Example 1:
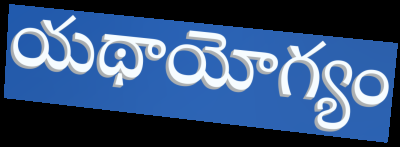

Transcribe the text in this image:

యథాయోగ్యం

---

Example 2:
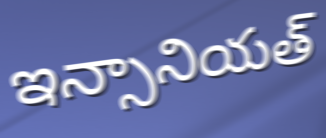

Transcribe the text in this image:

ఇన్సానియత్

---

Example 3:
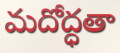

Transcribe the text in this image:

మదోద్ధతా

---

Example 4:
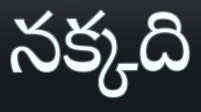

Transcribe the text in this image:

నక్కది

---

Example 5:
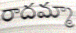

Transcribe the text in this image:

రాదమ్మా